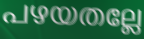
പഴയതല്ലേ